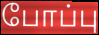
போப்பு